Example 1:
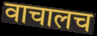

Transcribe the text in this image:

वाचालच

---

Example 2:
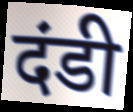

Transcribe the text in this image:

दंडी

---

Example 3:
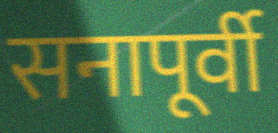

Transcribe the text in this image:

सनापूर्वी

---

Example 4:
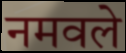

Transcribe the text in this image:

नमवले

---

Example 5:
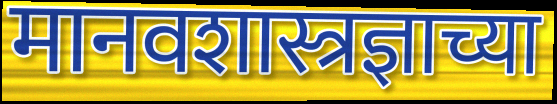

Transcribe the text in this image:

मानवशास्त्रज्ञाच्या